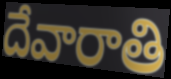
దేవారాతి